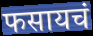
फसायचं